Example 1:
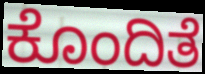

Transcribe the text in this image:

ಕೊಂದಿತೆ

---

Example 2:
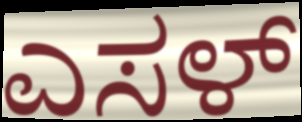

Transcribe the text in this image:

ಎಸಳ್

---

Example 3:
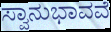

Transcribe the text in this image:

ಸ್ವಾನುಭಾವವೆ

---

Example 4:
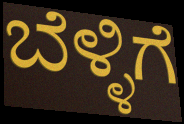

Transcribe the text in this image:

ಬೆಳ್ಳಿಗೆ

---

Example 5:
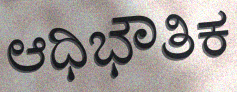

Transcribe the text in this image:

ಆಧಿಭೌತಿಕ